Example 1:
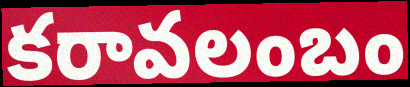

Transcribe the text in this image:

కరావలంబం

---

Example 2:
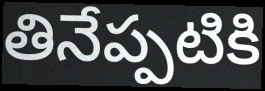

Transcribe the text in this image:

తినేప్పటికి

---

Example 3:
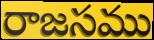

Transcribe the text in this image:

రాజసము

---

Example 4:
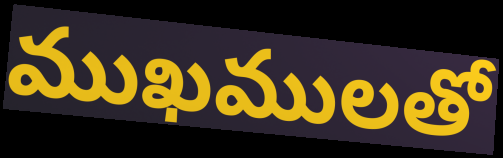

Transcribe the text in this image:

ముఖములతో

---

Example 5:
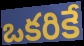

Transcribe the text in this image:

ఒకరికే